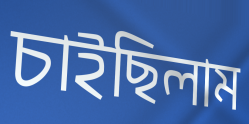
চাইছিলাম